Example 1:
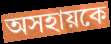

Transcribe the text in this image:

অসহায়কে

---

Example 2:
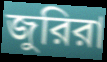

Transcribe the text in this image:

জুরিরা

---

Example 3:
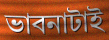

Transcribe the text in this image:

ভাবনাটাই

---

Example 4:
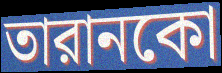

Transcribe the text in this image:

তারানকো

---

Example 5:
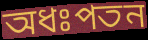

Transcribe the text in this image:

অধঃপতন